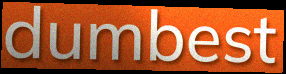
dumbest